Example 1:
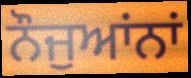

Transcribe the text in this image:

ਨੌਜੁਆਂਨਾਂ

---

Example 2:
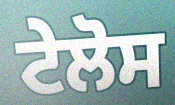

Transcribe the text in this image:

ਟੇਲੋਸ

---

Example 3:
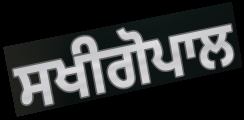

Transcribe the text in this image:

ਸਖੀਗੋਪਾਲ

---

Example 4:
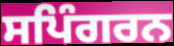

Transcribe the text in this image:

ਸਪਿੰਗਰਨ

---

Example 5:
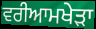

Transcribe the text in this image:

ਵਰੀਆਮਖੇੜਾ